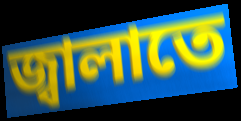
জ্বালাতে